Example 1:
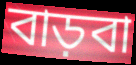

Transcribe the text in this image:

বাড়বা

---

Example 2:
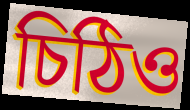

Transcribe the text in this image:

চিঠিও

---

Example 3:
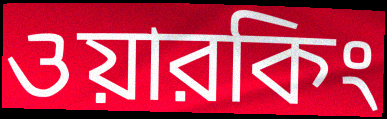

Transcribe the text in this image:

ওয়ারকিং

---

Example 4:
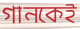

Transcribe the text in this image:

গানকেই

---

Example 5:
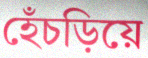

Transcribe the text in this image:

হেঁচড়িয়ে